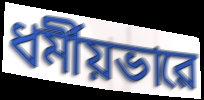
ধৰ্মীয়ভাৱে